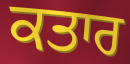
ਕਤਾਰ